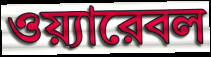
ওয়্যারেবল